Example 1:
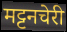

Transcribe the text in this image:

मट्टनचेरी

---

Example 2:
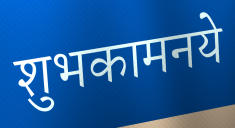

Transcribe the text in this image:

शुभकामनये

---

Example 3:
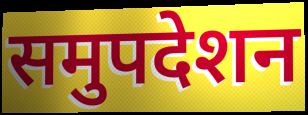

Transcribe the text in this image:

समुपदेशन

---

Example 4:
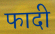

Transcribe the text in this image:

फादी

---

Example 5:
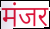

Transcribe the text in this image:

मंजर